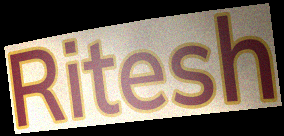
Ritesh